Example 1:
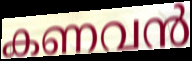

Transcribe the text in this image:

കണവൻ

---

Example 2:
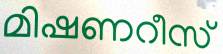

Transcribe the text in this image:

മിഷണറീസ്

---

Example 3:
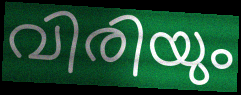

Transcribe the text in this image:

വിരിയും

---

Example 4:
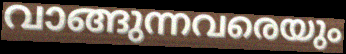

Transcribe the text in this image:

വാങ്ങുന്നവരെയും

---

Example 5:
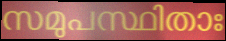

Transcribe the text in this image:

സമുപസ്ഥിതാഃ